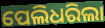
ପେଲିଧରିଲା